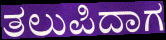
ತಲುಪಿದಾಗ